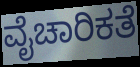
ವೈಚಾರಿಕತೆ